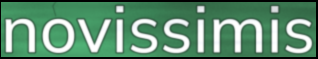
novissimis